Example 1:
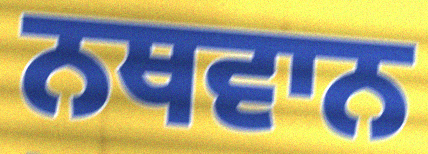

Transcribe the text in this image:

ਨਥਵਾਨ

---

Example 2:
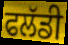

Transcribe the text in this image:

ਫਲੱਡੀ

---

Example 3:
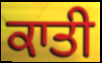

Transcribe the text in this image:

ਕਾਤੀ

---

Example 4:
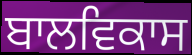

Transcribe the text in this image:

ਬਾਲਵਿਕਾਸ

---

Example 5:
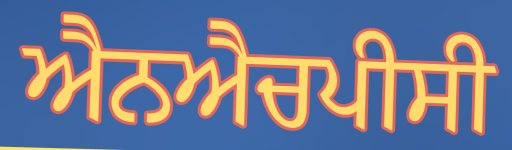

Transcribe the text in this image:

ਐਨਐਚਪੀਸੀ